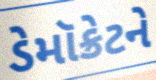
ડેમૉક્રેટને